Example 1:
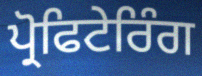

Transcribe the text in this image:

ਪ੍ਰੋਫਿਟੇਰਿੰਗ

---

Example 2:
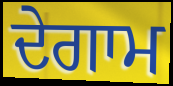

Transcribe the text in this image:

ਦੇਗਾਮ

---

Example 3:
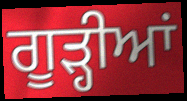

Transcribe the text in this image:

ਗੂੜ੍ਹੀਆਂ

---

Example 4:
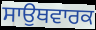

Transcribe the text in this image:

ਸਾਉਥਵਾਰਕ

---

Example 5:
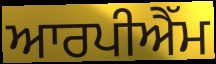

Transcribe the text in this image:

ਆਰਪੀਐੱਮ